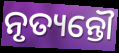
ନୃତ୍ୟନ୍ତୌ